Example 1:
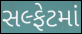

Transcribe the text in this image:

સલ્ફેટમાં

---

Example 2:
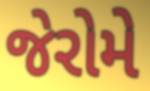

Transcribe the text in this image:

જેરોમે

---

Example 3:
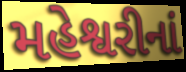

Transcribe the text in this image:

મહેશ્વરીનાં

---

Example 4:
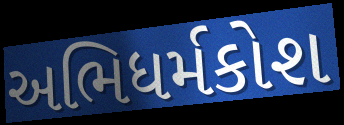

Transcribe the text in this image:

અભિધર્મકોશ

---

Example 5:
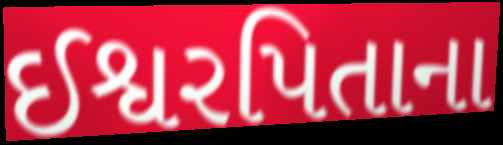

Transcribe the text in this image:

ઈશ્વરપિતાના